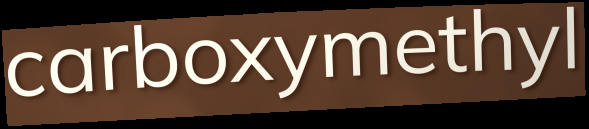
carboxymethyl